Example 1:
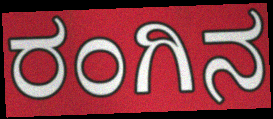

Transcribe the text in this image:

ರಂಗಿನ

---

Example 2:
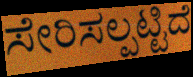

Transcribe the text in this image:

ಸೇರಿಸಲ್ಪಟ್ಟಿದೆ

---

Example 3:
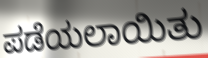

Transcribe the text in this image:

ಪಡೆಯಲಾಯಿತು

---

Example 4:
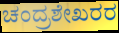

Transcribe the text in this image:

ಚಂದ್ರಶೇಖರರ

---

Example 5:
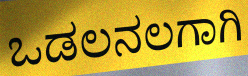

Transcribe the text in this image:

ಒಡಲನಲಗಾಗಿ